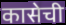
कासेची